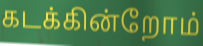
கடக்கின்றோம்